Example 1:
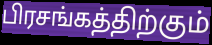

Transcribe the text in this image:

பிரசங்கத்திற்கும்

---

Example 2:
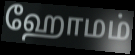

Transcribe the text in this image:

ஹோமம்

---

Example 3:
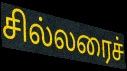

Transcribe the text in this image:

சில்லரைச்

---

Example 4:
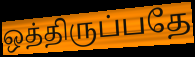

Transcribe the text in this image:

ஒத்திருப்பதே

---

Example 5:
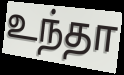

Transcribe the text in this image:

உந்தா